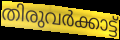
തിരുവർക്കാട്ട്